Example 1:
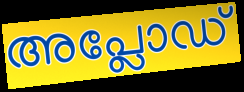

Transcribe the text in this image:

അപ്ലോഡ്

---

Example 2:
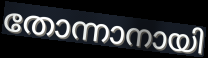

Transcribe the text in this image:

തോന്നാനായി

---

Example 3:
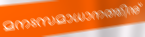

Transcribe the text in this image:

മനഃസമാധാനത്തിനു്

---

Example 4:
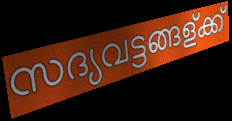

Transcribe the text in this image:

സദ്യവട്ടങ്ങള്ക്ക്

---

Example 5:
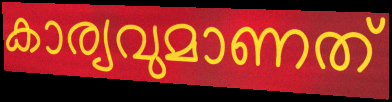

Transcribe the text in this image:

കാര്യവുമാണത്